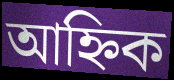
আহ্নিক